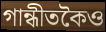
গান্ধীতকৈও